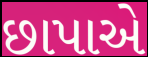
છાપાએ